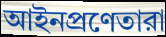
আইনপ্রণেতারা